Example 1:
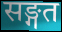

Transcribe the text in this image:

सङ्गत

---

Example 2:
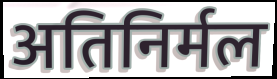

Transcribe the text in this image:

अतिनिर्मल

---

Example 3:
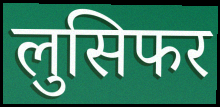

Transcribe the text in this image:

लुसिफर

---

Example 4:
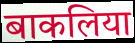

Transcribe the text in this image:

बाकलिया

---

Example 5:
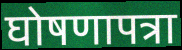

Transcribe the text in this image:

घोषणापत्रा